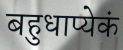
बहुधाप्येकं